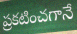
ప్రకటించగానే